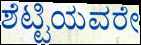
ಶೆಟ್ಟಿಯವರೇ